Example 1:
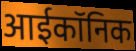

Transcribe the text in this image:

आईकॉनिक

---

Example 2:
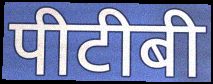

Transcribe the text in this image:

पीटीबी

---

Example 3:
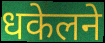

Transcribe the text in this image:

धकेलने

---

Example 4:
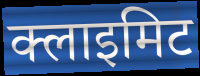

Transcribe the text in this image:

क्लाइमिट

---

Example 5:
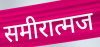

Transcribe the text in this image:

समीरात्मज